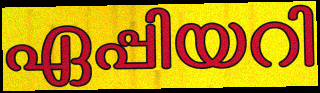
ഏപ്പിയറി